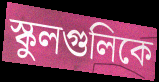
স্কুলগুলিকে